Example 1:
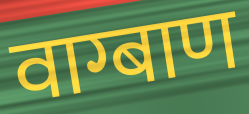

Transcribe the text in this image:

वाग्बाण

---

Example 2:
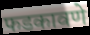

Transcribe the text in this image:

फडकावणे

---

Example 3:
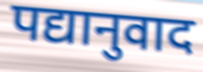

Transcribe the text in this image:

पद्यानुवाद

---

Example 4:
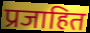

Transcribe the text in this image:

प्रजाहित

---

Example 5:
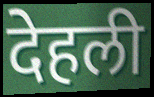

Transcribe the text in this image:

देहली